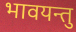
भावयन्तु